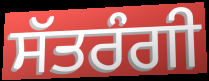
ਸੱਤਰੰਗੀ